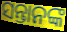
ସନ୍ତାନଙ୍କ